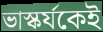
ভাস্কর্যকেই